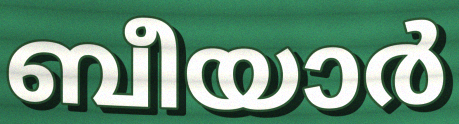
ബീയാർ